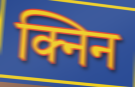
क्निन